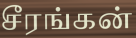
சீரங்கன்